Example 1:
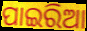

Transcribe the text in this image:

ପାଇରିଆ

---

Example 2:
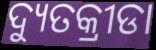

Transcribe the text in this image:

ଦ୍ୟୁତକ୍ରୀଡା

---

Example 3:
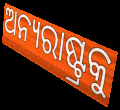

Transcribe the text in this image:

ଅନ୍ୟରାଷ୍ଟ୍ରକୁ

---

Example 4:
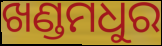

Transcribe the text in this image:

ଖଣ୍ଡମଧୁର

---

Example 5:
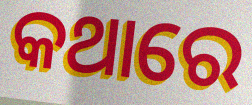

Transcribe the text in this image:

କଥାରେ